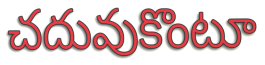
చదువుకొంటూ